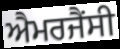
ਐਮਰਜੈਂਸੀ